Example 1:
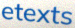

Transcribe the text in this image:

etexts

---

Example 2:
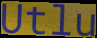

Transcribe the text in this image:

Utlu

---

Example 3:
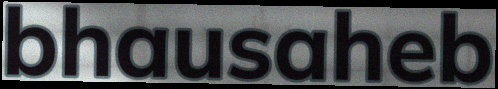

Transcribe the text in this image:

bhausaheb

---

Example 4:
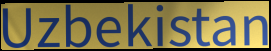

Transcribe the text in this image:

Uzbekistan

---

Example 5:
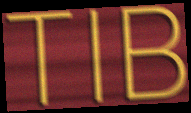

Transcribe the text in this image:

TIB